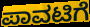
ಪಾವಟಿಗೆ